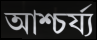
আশ্চৰ্য্য